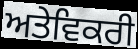
ਅਤੇਵਿਕਰੀ